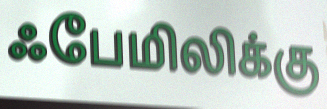
ஃபேமிலிக்கு